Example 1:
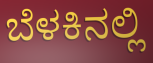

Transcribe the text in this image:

ಬೆಳಕಿನಲ್ಲಿ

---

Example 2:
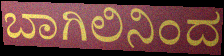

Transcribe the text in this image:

ಬಾಗಿಲಿನಿಂದ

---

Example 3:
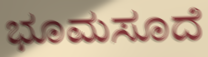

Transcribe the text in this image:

ಭೂಮಸೂದೆ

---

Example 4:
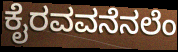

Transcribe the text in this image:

ಕೈರವವನೆನಲೆಂ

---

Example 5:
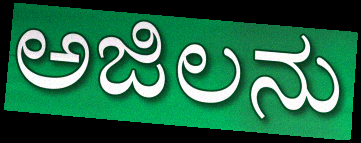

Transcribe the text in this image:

ಅಜಿಲನು